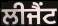
ਲੀਜੈਂਟ